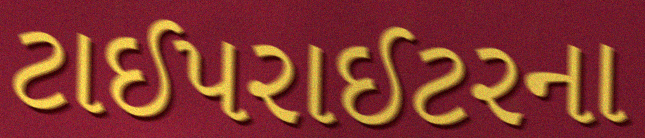
ટાઈપરાઈટરના